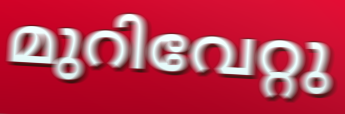
മുറിവേറ്റു